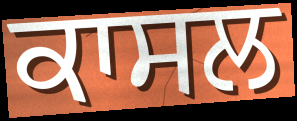
ਕਾਸਲ